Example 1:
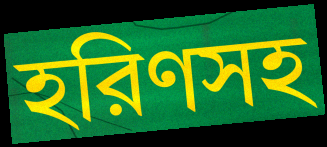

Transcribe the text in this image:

হরিণসহ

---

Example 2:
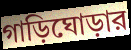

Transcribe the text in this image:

গাড়িঘোড়ার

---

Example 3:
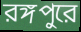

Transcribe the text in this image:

রঙ্গপুরে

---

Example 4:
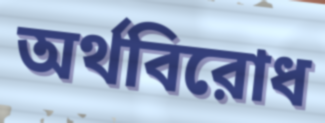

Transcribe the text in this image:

অর্থবিরোধ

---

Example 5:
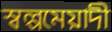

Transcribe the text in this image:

স্বল্পমেয়াদী